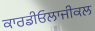
ਕਾਰਡੀਓਲਾਜੀਕਲ